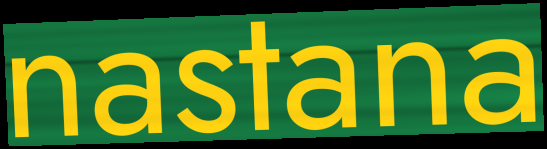
nastana